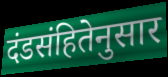
दंडसंहितेनुसार